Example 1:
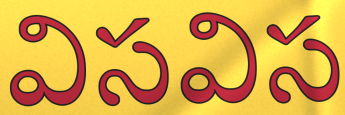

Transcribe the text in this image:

విసవిస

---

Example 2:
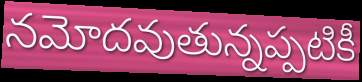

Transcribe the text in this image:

నమోదవుతున్నప్పటికీ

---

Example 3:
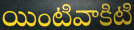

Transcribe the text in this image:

యింటివాకిటి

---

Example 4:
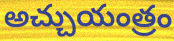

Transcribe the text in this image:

అచ్చుయంత్రం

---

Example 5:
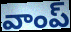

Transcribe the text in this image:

వాంప్